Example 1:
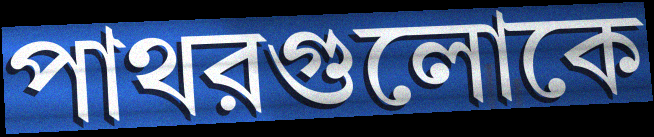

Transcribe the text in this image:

পাথরগুলোকে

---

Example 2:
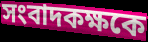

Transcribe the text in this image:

সংবাদকক্ষকে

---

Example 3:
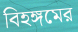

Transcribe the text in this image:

বিহঙ্গমের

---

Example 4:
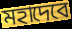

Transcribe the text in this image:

মহাদেবে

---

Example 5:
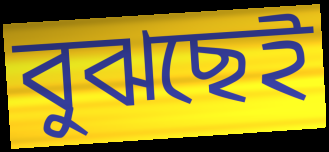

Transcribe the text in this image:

বুঝছেই